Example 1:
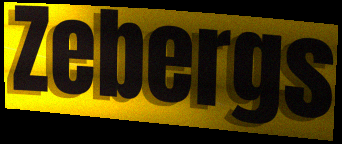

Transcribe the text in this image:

Zebergs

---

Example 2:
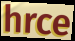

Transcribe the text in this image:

hrce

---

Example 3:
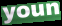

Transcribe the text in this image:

youn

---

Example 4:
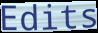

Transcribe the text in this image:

Edits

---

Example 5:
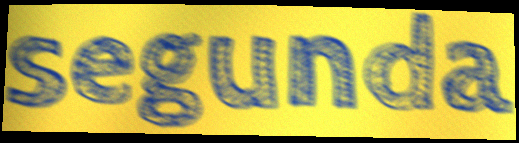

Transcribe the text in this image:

segunda